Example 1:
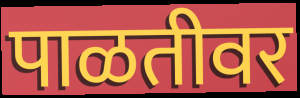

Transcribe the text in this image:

पाळतीवर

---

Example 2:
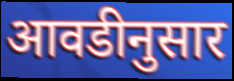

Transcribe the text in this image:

आवडीनुसार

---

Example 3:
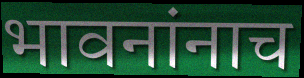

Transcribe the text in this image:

भावनांनाच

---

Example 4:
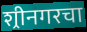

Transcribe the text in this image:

श्रीनगरचा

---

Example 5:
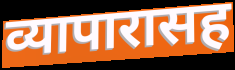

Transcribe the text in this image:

व्यापारासह